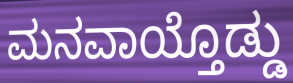
ಮನವಾಯ್ತೊಡ್ಡು